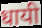
धायी